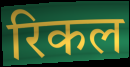
रिकल